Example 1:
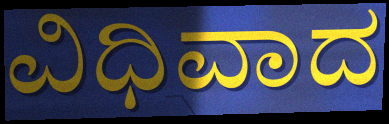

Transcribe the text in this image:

ವಿಧಿವಾದ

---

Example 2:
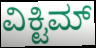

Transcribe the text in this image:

ವಿಕ್ಟಿಮ್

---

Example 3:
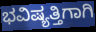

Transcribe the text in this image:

ಭವಿಷ್ಯತ್ತಿಗಾಗಿ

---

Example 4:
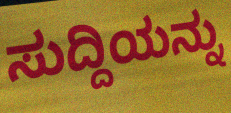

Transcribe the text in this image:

ಸುದ್ದಿಯನ್ನು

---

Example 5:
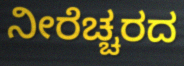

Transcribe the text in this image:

ನೀರೆಚ್ಚರದ